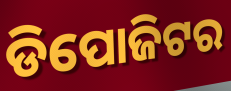
ଡିପୋଜିଟର